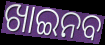
ଖାଇନବ